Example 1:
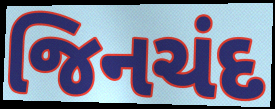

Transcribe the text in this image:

જિનચંદ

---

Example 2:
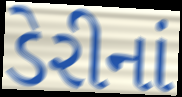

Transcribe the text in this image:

ડેરીનાં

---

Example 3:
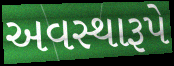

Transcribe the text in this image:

અવસ્થારૂપે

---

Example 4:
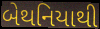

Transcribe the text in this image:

બેથનિયાથી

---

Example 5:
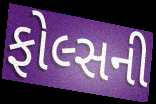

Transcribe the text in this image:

ફોલ્સની